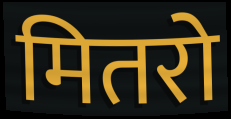
मितरो